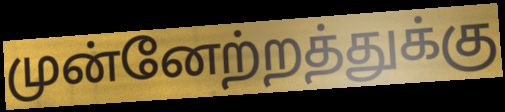
முன்னேற்றத்துக்கு